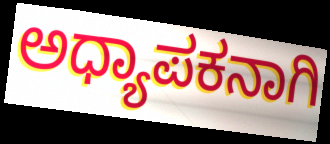
ಅಧ್ಯಾಪಕನಾಗಿ